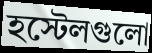
হস্টেলগুলো